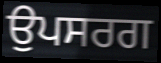
ਉਪਸਰਗ